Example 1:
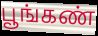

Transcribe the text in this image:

பூங்கண்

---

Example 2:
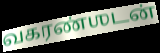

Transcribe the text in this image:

வகரண்ஶடன்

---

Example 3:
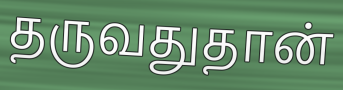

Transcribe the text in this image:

தருவதுதான்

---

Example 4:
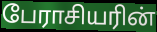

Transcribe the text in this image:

பேராசியரின்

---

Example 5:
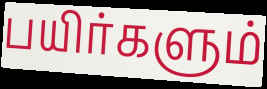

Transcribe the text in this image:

பயிர்களும்